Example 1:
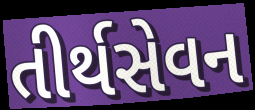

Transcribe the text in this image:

તીર્થસેવન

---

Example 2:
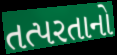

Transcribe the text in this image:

તત્પરતાનો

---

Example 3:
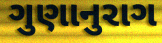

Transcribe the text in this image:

ગુણાનુરાગ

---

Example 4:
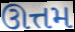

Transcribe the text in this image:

ઊત્તમ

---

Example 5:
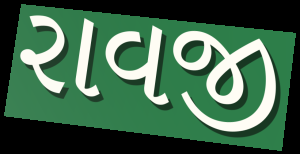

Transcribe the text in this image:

રાવજી